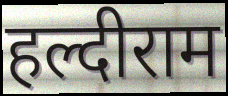
हल्दीराम